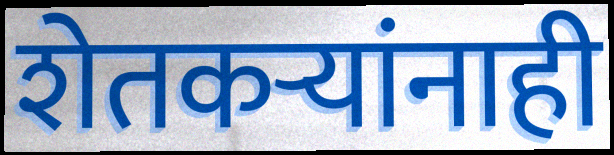
शेतकऱ्यांनाही